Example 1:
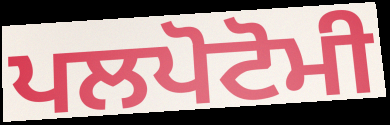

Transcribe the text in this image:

ਪਲਪੋਟੋਮੀ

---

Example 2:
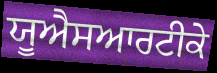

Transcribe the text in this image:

ਯੂਐਸਆਰਟੀਕੇ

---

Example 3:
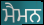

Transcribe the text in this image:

ਮੈਮਨ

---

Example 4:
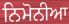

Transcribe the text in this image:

ਨਿਮੋਨੀਆ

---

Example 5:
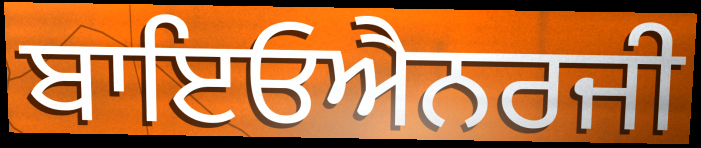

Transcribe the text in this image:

ਬਾਇਓਐਨਰਜੀ